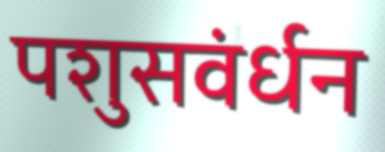
पशुसवंर्धन